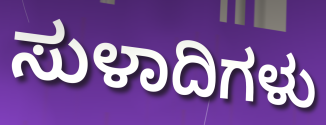
ಸುಳಾದಿಗಳು